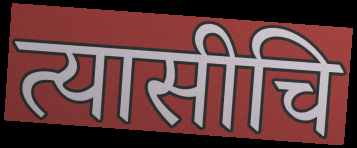
त्यासीचि